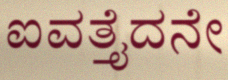
ಐವತ್ತೈದನೇ